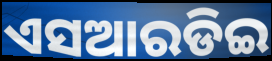
ଏସଆରଡିଇ